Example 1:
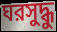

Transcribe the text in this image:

ঘরসুদ্ধু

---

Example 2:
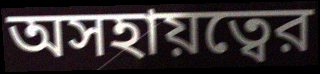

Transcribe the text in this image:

অসহায়ত্বের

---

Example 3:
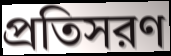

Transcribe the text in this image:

প্রতিসরণ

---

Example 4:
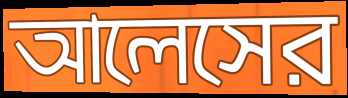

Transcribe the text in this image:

আলেসের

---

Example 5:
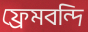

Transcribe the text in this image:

ফ্রেমবন্দি